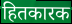
हितकारक